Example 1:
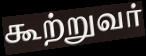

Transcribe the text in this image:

கூற்றுவர்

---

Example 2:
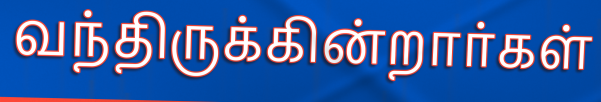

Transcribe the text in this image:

வந்திருக்கின்றார்கள்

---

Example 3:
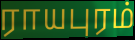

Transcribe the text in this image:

ராயபுரம்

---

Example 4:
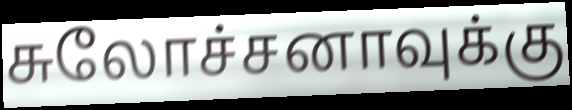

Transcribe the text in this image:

சுலோச்சனாவுக்கு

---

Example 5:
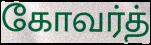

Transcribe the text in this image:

கோவர்த்